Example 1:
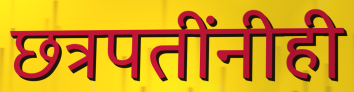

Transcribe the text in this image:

छत्रपतींनीही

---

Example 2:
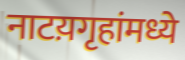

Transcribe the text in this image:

नाटय़गृहांमध्ये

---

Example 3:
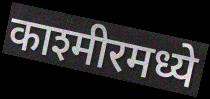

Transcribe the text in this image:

काश्मीरमध्ये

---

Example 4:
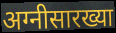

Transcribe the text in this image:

अग्नीसारख्या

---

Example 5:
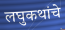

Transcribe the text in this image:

लघुकथांचे